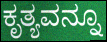
ಕೃತ್ಯವನ್ನೂ